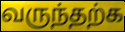
வருந்தற்க